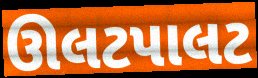
ઊલટપાલટ